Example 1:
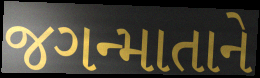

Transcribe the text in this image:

જગન્માતાને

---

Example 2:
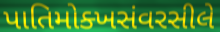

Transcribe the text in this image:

પાતિમોક્ખસંવરસીલે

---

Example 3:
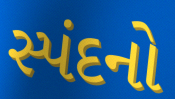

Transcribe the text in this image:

સ્પંદનો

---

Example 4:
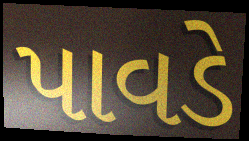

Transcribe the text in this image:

પાવડે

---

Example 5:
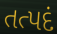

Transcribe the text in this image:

તત્પદં